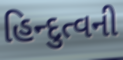
હિન્દુત્વની